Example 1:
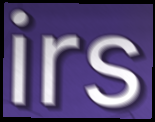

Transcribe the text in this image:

irs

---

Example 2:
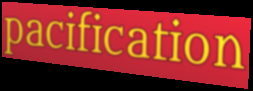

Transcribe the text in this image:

pacification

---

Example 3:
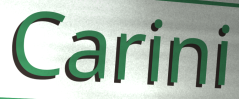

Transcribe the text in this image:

Carini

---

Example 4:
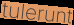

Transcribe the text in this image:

tulerunt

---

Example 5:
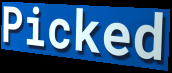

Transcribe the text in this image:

Picked